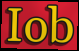
Iob